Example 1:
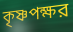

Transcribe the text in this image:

কৃষ্ণপক্ষর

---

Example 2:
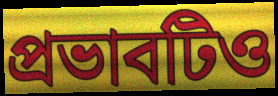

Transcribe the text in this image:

প্রভাবটিও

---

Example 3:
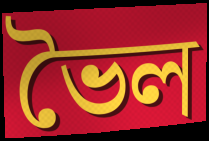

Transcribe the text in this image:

ভৈল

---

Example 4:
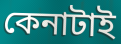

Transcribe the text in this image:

কেনাটাই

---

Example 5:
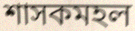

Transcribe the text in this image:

শাসকমহল